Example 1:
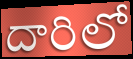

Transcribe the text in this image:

దారిలో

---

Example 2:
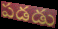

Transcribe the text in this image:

పడడు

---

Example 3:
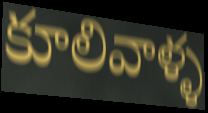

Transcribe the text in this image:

కూలివాళ్ళ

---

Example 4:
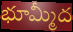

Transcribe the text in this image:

భూమ్మీద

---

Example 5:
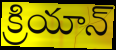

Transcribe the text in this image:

క్రియాన్